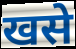
खसे